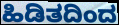
ಹಿಡಿತದಿಂದ